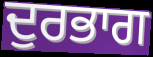
ਦੁਰਭਾਗ